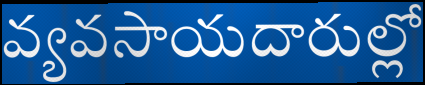
వ్యవసాయదారుల్లో